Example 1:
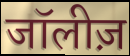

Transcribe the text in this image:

जॉलीज़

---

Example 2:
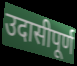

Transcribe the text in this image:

उदासीपूर्ण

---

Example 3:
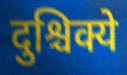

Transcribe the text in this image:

दुश्चिक्ये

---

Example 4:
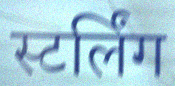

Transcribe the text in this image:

स्टर्लिंग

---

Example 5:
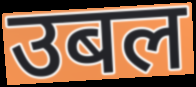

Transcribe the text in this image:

उबल